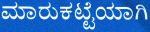
ಮಾರುಕಟ್ಟೆಯಾಗಿ